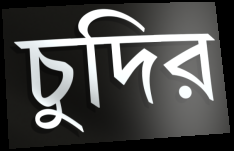
চুদির